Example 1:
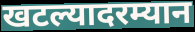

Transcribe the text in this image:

खटल्यादरम्यान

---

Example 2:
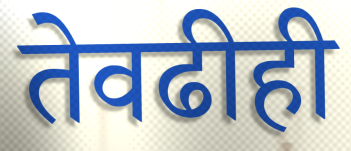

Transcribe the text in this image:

तेवढीही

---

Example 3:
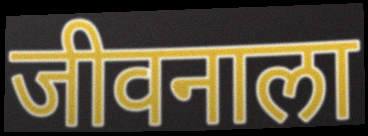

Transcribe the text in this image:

जीवनाला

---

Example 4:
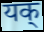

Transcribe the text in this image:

यक्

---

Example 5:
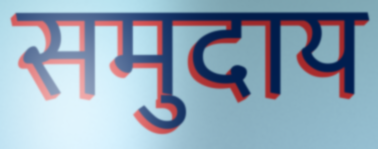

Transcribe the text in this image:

समुदाय